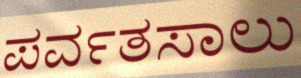
ಪರ್ವತಸಾಲು